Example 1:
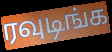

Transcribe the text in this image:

ரவுடிங்க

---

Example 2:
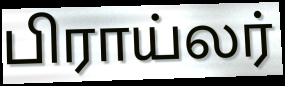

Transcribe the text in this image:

பிராய்லர்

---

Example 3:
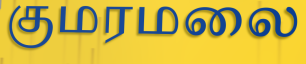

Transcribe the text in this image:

குமரமலை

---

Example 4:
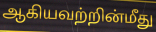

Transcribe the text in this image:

ஆகியவற்றின்மீது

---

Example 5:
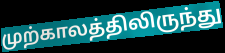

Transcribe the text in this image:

முற்காலத்திலிருந்து